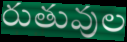
రుతువుల